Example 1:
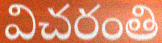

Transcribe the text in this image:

విచరంతి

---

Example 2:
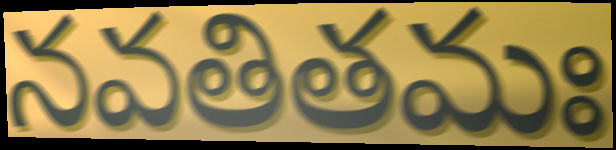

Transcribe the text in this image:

నవతితమః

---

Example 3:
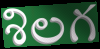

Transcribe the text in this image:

శిలగ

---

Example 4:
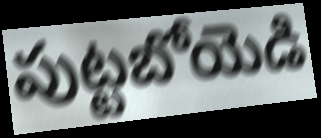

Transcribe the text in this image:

పుట్టబోయెడి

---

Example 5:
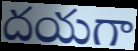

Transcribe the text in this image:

దయగా